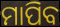
ମାପିବ